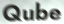
Qube